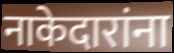
नाकेदारांना